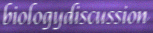
biologydiscussion